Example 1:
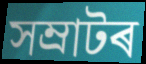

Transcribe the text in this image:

সম্ৰাটৰ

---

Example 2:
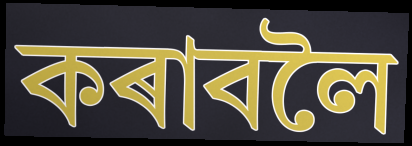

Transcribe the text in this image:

কৰাবলৈ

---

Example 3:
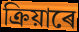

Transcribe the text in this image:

ক্ৰিয়াৰে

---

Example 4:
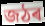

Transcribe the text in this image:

জঠৰ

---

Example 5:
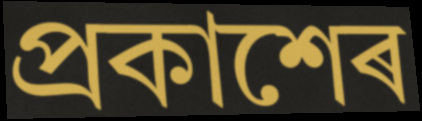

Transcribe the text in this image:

প্ৰকাশেৰ